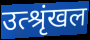
उत्श्रृंखल